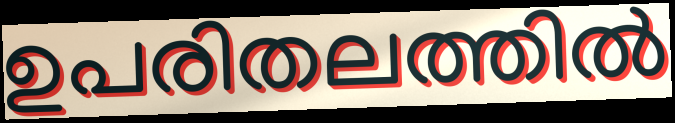
ഉപരിതലത്തിൽ